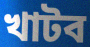
খাটব